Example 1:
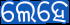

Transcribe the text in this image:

ଲେହେ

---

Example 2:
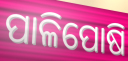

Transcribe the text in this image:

ପାଳିପୋଷି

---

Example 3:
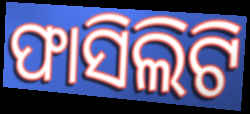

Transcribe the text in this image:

ଫାସିଲିଟି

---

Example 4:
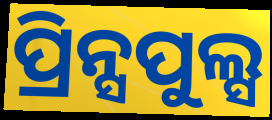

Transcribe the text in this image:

ପ୍ରିନ୍ସପୁଲ୍ସ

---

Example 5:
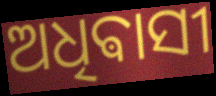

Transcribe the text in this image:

ଅଧିଵାସୀ